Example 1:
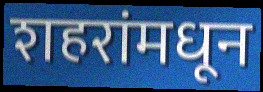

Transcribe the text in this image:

शहरांमधून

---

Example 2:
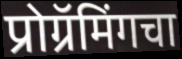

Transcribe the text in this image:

प्रोग्रॅमिंगचा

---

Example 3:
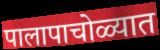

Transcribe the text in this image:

पालापाचोळ्यात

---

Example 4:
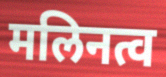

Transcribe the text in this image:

मलिनत्व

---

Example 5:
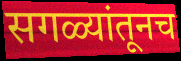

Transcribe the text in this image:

सगळ्यांतूनच